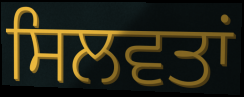
ਸਿਲਵਤਾਂ